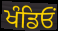
ਖੰਡਿਓਂ